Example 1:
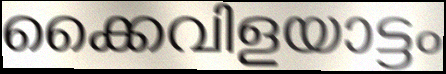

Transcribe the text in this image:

ക്കൈവിളയാട്ടം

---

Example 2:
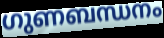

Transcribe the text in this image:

ഗുണബന്ധനം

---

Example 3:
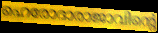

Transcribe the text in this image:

ഹെരോദാരാജാവിന്റെ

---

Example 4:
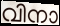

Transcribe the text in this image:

വിനാ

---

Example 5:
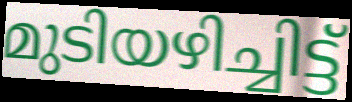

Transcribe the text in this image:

മുടിയഴിച്ചിട്ട്